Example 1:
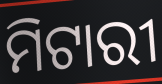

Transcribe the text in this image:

ମିଟାରୀ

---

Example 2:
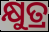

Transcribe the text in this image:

କ୍ଷୁତ୍ର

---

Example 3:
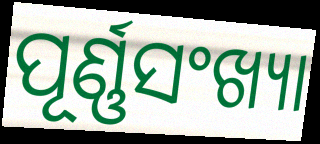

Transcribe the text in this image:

ପୂର୍ଣ୍ଣସଂଖ୍ୟା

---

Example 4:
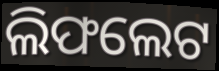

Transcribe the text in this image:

ଲିଫଲେଟ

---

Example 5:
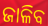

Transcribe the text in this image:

ଜାଳିବ